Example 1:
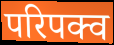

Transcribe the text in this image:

परिपक्व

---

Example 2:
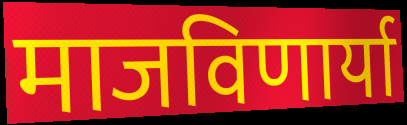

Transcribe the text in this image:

माजविणार्या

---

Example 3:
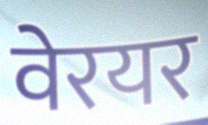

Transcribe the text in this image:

वेरयर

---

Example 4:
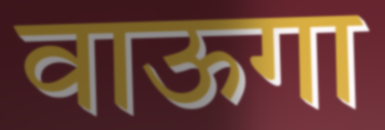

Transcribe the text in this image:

वाऊगा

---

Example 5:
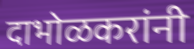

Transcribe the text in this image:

दाभोळकरांनी